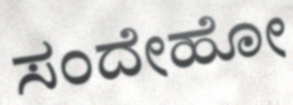
ಸಂದೇಹೋ